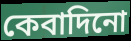
কেবাদিনো